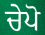
ਚੇਪੋ